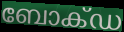
ബോക്ഡ